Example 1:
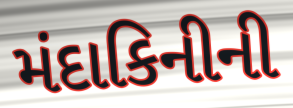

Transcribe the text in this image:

મંદાકિનીની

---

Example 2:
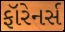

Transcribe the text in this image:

ફૉરેનર્સ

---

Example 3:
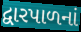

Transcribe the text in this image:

દ્વારપાળનાં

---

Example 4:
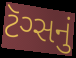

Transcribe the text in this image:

ટૅગ્સનું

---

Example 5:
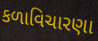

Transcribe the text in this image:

કળાવિચારણા